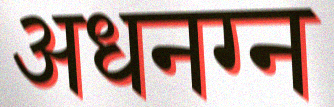
अधनग्न